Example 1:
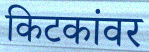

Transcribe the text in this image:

किटकांवर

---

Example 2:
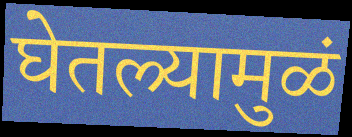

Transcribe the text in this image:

घेतल्यामुळं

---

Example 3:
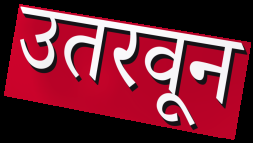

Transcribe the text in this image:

उतरवून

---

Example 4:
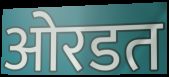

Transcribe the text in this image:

ओरडत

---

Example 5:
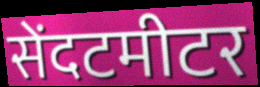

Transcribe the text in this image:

सेंदटमीटर